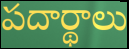
పదార్థాలు